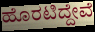
ಹೊರಟಿದ್ದೇವೆ